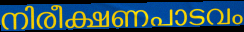
നിരീക്ഷണപാടവം